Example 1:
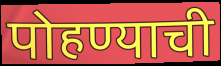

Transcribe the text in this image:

पोहण्याची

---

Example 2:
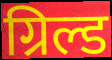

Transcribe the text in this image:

ग्रिल्ड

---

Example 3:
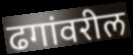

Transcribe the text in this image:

ढगांवरील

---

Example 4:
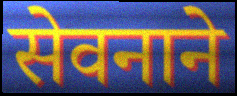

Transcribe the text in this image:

सेवनाने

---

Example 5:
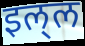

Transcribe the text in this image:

इल्ल